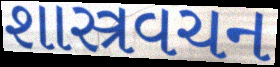
શાસ્ત્રવચન